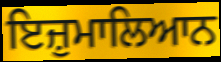
ਇਜ਼ੁਮਾਲਿਆਨ